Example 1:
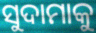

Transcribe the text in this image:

ସୁଦାମାକୁ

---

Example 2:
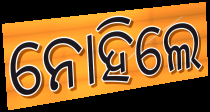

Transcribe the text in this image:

ନୋହିଲେ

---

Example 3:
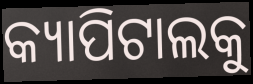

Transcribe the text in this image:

କ୍ୟାପିଟାଲକୁ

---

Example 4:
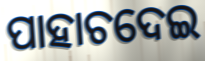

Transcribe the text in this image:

ପାହାଚଦେଇ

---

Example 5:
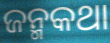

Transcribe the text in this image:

ଜନ୍ମକଥା